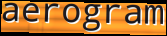
aerogram